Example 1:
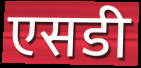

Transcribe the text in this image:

एसडी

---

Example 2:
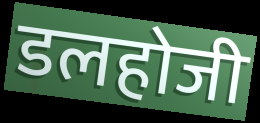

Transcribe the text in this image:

डलहोजी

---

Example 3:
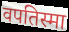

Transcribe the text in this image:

वपतिस्मा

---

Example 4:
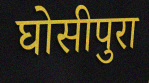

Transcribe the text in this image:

घोसीपुरा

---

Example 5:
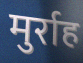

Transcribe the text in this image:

मुर्राह